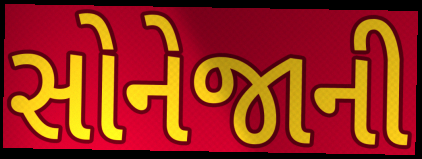
સોનેજાની